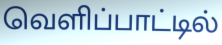
வெளிப்பாட்டில்